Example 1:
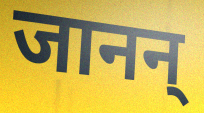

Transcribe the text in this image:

जानन्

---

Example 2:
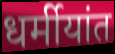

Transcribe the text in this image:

धर्मीयांत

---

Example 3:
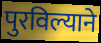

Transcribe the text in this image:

पुरविल्याने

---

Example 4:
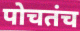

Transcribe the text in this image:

पोचतंच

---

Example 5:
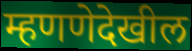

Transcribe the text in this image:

म्हणणेदेखील